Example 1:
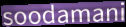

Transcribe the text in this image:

soodamani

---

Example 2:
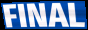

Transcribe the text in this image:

FINAL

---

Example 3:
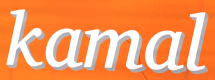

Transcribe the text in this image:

kamal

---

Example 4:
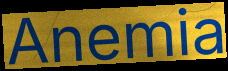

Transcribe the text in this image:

Anemia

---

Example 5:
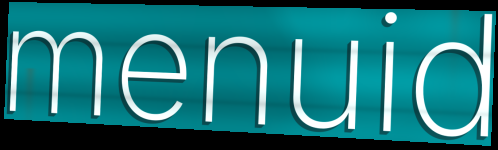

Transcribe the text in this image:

menuid